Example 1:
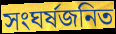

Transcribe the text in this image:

সংঘর্ষজনিত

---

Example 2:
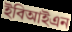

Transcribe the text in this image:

ইবিআইএন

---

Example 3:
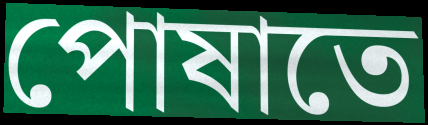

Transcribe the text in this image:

পোষাতে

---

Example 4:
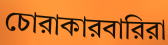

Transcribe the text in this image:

চোরাকারবারিরা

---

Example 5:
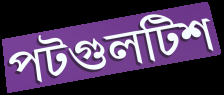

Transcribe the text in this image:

পটগুলটিশ